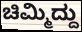
ಚಿಮ್ಮಿದ್ದು